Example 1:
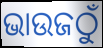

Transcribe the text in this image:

ଭାଉଜଠୁଁ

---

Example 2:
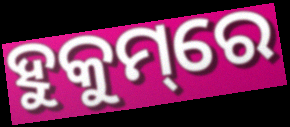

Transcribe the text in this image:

ହୁକୁମ୍‌ରେ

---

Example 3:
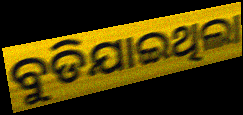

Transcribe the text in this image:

ବୁଡିଯାଇଥିଲା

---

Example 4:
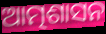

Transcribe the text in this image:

ଆତ୍ମଶାସନ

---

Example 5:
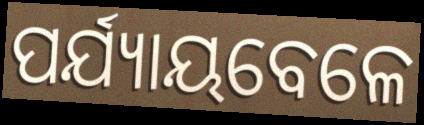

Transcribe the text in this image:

ପର୍ଯ୍ୟାୟବେଳେ